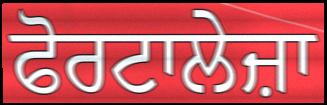
ਫੋਰਟਾਲੇਜ਼ਾ